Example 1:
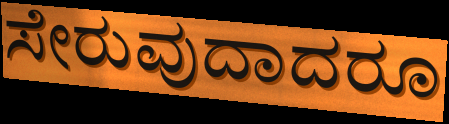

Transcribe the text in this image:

ಸೇರುವುದಾದರೂ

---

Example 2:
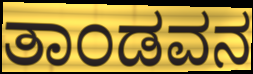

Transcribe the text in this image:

ತಾಂಡವನ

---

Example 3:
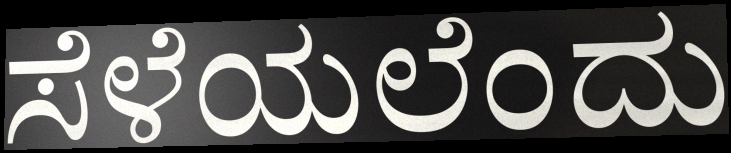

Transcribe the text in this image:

ಸೆಳೆಯಲೆಂದು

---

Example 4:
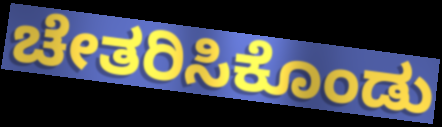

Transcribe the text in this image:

ಚೇತರಿಸಿಕೊಂಡು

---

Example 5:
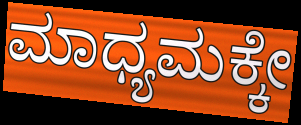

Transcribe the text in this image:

ಮಾಧ್ಯಮಕ್ಕೇ